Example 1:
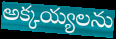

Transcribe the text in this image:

అక్కయ్యలను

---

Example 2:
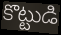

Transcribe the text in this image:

కొట్టుడి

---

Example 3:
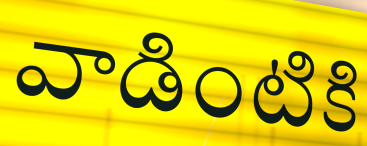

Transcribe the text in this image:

వాడింటికి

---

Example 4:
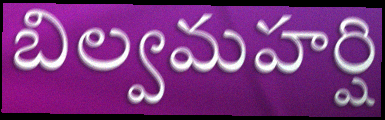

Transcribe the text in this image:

బిల్వమహర్షి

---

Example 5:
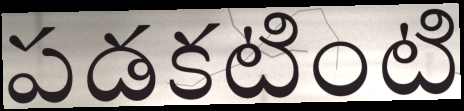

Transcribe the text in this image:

పడకటింటి